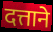
दत्ताने